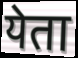
येता